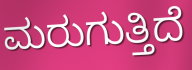
ಮರುಗುತ್ತಿದೆ